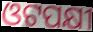
ଓଟପକ୍ଷୀ